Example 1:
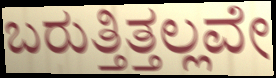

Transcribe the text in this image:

ಬರುತ್ತಿತ್ತಲ್ಲವೇ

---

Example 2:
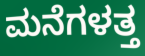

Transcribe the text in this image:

ಮನೆಗಳತ್ತ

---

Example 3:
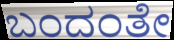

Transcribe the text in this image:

ಬಂದಂತೇ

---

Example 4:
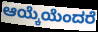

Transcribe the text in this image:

ಆಯ್ಕೆಯೆಂದರೆ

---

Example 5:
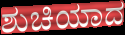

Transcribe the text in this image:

ಶುಚಿಯಾದ